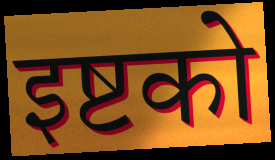
इष्टको